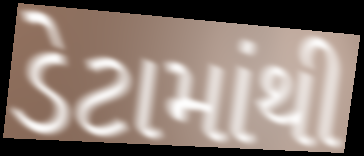
ડેટામાંથી